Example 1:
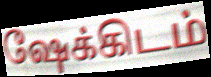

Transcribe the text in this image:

ஷேக்கிடம்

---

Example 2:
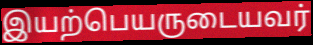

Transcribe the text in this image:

இயற்பெயருடையவர்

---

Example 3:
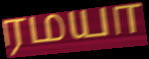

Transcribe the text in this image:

ரமயா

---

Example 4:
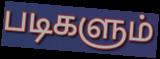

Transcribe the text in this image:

படிகளும்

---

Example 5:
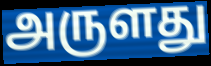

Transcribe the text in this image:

அருளது